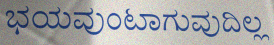
ಭಯವುಂಟಾಗುವುದಿಲ್ಲ